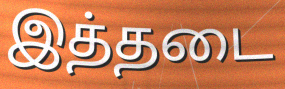
இத்தடை